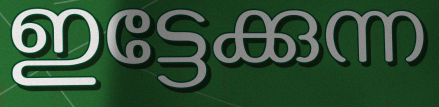
ഇട്ടേക്കുന്ന